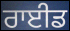
ਰਾਈਡ